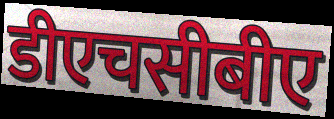
डीएचसीबीए